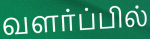
வளர்ப்பில்